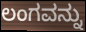
ಲಂಗವನ್ನು